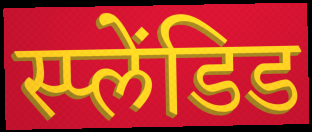
स्प्लेंडिड